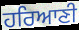
ਹਰਿਆਣੀ